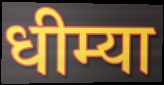
धीम्या